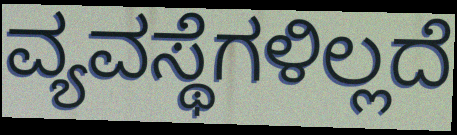
ವ್ಯವಸ್ಥೆಗಳಿಲ್ಲದೆ